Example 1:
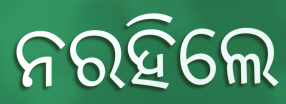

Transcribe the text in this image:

ନରହିଲେ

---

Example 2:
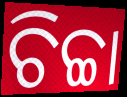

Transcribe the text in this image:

ଚିଚ୍ଚା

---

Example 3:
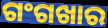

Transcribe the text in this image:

ଗଂଗଖାର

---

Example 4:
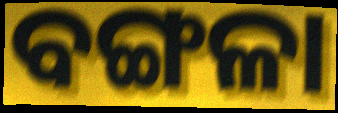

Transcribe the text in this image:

ବଙ୍ଗଳା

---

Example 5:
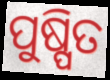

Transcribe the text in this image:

ପୁଷ୍ପିତ